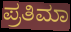
ಪ್ರತಿಮಾ